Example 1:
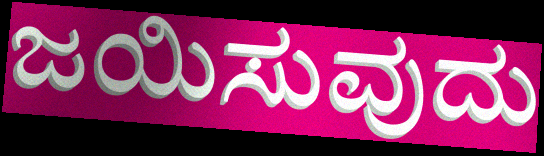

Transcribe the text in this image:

ಜಯಿಸುವುದು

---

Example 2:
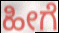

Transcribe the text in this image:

ಹೀಗೆ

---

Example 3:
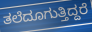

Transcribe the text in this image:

ತಲೆದೂಗುತ್ತಿದ್ದರೆ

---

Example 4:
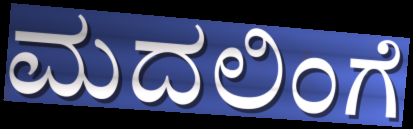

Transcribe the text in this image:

ಮದಲಿಂಗೆ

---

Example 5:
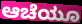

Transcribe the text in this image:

ಆಚೆಯೂ